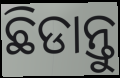
ଛିଡାନ୍ତୁ